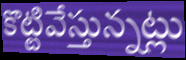
కొట్టివేస్తున్నట్లు